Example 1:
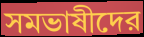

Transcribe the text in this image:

সমভাষীদের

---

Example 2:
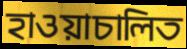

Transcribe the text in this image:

হাওয়াচালিত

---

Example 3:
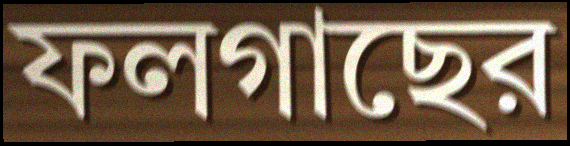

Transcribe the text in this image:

ফলগাছের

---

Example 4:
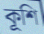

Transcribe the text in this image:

কূশি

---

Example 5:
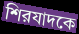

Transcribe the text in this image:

শিরযাদকে